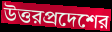
উত্তরপ্রদেশের